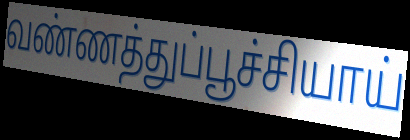
வண்ணத்துப்பூச்சியாய்